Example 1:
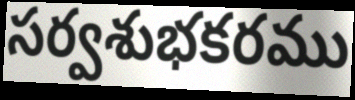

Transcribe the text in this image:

సర్వశుభకరము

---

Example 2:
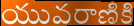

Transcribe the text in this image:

యువరాణికి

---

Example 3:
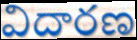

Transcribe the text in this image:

విదారణ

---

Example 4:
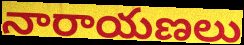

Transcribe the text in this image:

నారాయణలు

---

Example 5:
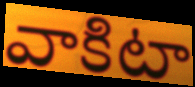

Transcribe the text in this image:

వాకిటా